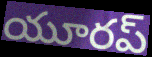
యూరప్